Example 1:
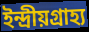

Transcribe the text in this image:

ইন্দ্রীয়গ্রাহ্য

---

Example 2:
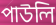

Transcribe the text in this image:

পাউলি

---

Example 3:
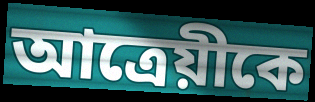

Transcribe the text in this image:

আত্রেয়ীকে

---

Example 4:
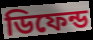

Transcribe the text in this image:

ডিফেন্ড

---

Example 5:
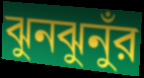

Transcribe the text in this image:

ঝুনঝুনুঁর